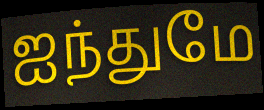
ஐந்துமே